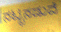
ನಟ್ಟನಡುವೆ